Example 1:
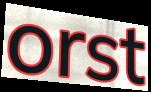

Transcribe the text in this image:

orst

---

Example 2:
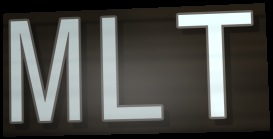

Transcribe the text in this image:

MLT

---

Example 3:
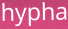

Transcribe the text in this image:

hypha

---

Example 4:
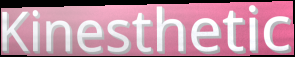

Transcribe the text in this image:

Kinesthetic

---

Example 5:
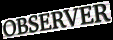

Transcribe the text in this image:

OBSERVER